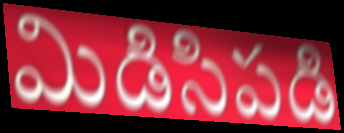
మిడిసిపడి